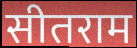
सीतराम